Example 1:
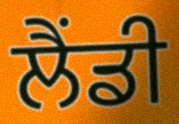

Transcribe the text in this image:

ਲੈਂਡੀ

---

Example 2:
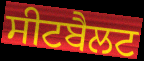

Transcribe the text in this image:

ਸੀਟਬੈਲਟ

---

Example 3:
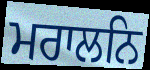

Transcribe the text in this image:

ਮਰਾਲਨਿ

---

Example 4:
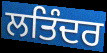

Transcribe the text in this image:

ਲਤਿੰਦਰ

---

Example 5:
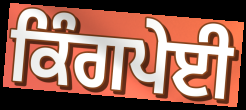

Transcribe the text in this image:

ਕਿੰਗਪੇਈ